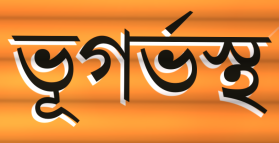
ভূগৰ্ভস্থ